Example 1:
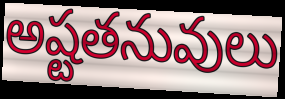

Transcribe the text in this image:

అష్టతనువులు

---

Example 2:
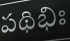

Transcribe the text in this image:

పథిభిః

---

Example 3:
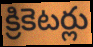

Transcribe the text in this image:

క్రికెటర్లు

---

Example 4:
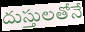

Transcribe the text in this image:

దుస్తులతోనే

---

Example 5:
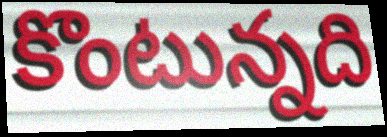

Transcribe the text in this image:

కొంటున్నది